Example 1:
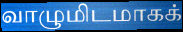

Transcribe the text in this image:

வாழுமிடமாகக்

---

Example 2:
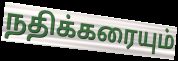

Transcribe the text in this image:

நதிக்கரையும்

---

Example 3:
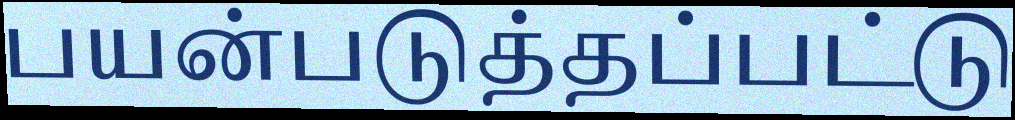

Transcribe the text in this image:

பயன்படுத்தப்பட்டு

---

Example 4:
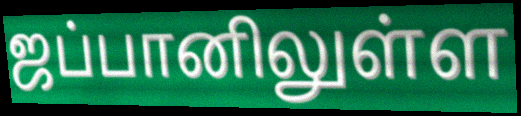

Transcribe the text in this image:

ஜப்பானிலுள்ள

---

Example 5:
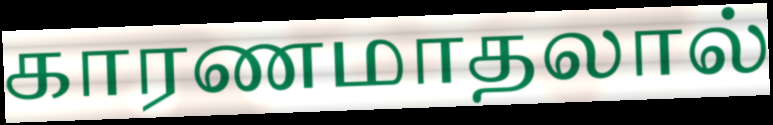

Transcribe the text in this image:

காரணமாதலால்